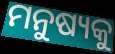
ମନୁଷ୍ୟକୁ